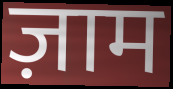
ज़ाम